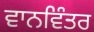
ਵਾਨਵਿੰਤਰ